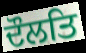
ਦੌਲਤਿ